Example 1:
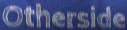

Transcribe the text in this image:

Otherside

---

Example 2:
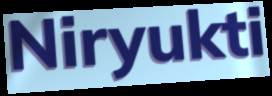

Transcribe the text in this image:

Niryukti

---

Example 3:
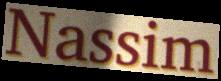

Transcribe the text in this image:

Nassim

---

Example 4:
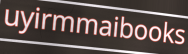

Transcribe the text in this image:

uyirmmaibooks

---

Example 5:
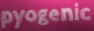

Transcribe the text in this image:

pyogenic